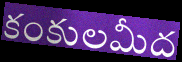
కంకులమీద